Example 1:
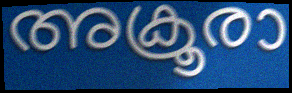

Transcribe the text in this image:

അക്രൂരാ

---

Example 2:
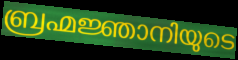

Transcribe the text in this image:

ബ്രഹ്മജ്ഞാനിയുടെ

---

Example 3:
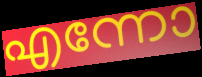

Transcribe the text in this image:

എന്നോ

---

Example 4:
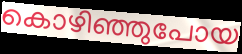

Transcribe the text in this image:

കൊഴിഞ്ഞുപോയ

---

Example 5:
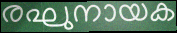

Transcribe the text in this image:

രഘുനായക